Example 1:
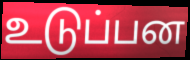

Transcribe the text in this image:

உடுப்பன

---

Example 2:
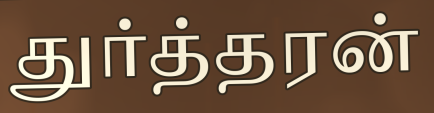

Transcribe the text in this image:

துர்த்தரன்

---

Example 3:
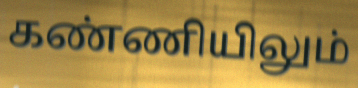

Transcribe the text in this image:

கண்ணியிலும்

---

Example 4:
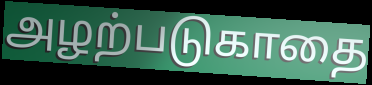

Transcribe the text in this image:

அழற்படுகாதை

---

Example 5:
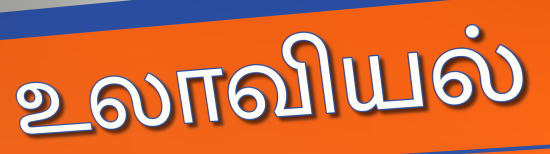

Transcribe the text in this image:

உலாவியல்